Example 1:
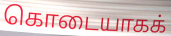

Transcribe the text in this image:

கொடையாகக்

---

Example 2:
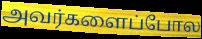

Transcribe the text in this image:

அவர்களைப்போல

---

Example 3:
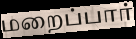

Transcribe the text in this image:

மறைப்பார்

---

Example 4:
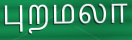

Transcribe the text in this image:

புறமலா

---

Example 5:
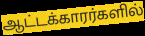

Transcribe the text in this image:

ஆட்டக்காரர்களில்